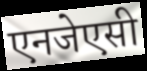
एनजेएसी